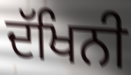
ਦੱਖਿਨੀ